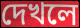
দেখলে